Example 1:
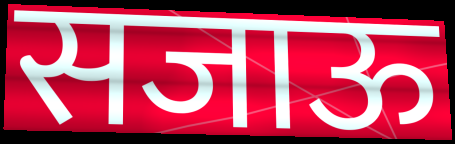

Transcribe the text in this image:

सजाऊ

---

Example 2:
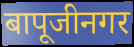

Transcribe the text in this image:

बापूजीनगर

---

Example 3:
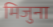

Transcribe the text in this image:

मिजुना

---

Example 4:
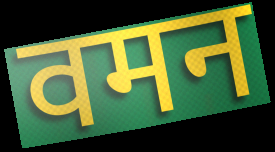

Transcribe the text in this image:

वमन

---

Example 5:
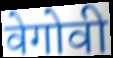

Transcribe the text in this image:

वेगोवी